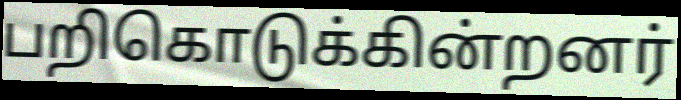
பறிகொடுக்கின்றனர்